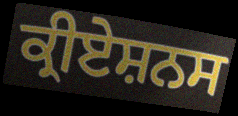
ਕ੍ਰੀਏਸ਼ਨਸ